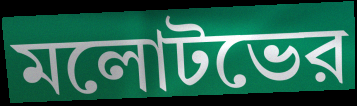
মলোটভের